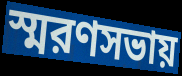
স্মরণসভায়